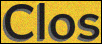
Clos